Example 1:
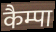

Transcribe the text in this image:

कैम्पा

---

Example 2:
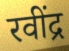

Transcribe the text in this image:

रवींद्र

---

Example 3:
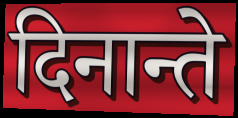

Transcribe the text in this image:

दिनान्ते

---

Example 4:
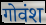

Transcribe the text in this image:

गोवंश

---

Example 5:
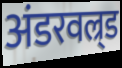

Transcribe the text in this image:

अंडरवल्र्ड